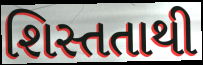
શિસ્તતાથી